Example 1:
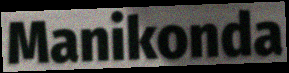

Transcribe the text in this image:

Manikonda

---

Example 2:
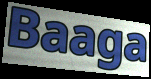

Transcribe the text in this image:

Baaga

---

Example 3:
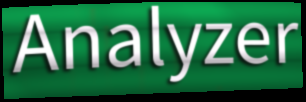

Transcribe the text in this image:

Analyzer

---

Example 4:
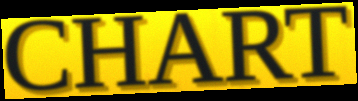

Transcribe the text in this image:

CHART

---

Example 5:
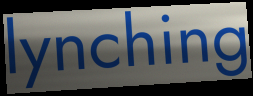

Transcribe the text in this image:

lynching